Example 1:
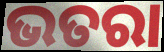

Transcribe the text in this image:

ଭତରା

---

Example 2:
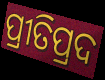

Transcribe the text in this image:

ପ୍ରୀତିପ୍ରଦ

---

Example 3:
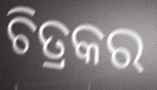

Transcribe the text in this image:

ଚିତ୍ରକର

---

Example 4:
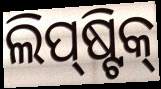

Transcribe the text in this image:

ଲିପ୍‌ଷ୍ଟିକ୍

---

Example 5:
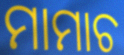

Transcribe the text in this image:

ମାମାଚ